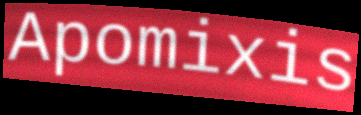
Apomixis